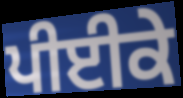
ਪੀਈਕੇ